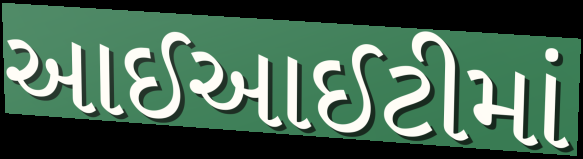
આઈઆઈટીમાં